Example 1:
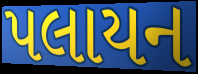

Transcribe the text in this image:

પલાયન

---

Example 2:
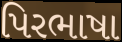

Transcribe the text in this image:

પિરભાષા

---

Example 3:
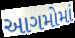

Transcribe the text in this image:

આગમોમાં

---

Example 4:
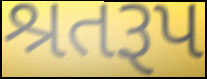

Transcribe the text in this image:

શ્રતરૂપ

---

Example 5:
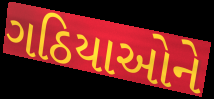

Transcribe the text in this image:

ગઠિયાઓને